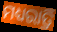
ମଧ୍ୟରାତ୍ରି